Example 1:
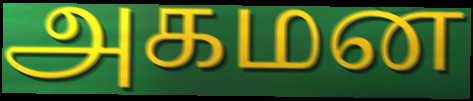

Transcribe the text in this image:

அகமன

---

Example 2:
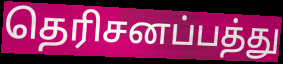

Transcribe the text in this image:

தெரிசனப்பத்து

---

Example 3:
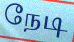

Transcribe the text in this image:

நேடி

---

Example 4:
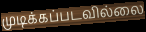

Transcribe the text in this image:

முடிக்கப்படவில்லை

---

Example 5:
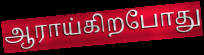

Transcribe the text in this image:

ஆராய்கிறபோது